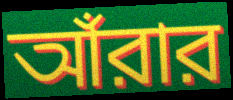
আঁরার